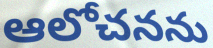
ఆలోచనను